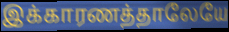
இக்காரணத்தாலேயே